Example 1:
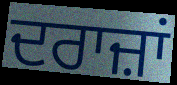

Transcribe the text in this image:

ਦਰਾਜ਼ਾਂ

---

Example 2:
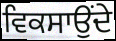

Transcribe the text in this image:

ਵਿਕਸਾਉਂਦੇ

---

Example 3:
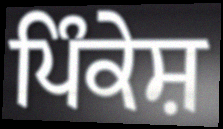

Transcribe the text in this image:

ਪਿੰਕੇਸ਼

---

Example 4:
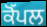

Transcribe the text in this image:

ਕੋੱਪਲ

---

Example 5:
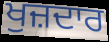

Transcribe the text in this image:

ਖੁਜ਼ਦਾਰ